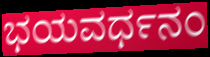
ಭಯವರ್ಧನಂ